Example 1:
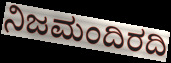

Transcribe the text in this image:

ನಿಜಮಂದಿರದಿ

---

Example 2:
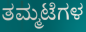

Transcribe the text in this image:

ತಮ್ಮಟೆಗಳ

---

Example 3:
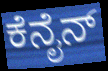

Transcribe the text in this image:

ಕೆನೈನ್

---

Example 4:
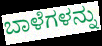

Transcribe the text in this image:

ಬಾಳೆಗಳನ್ನು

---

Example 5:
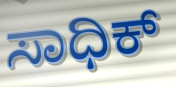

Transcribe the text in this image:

ಸಾಧಿಕ್